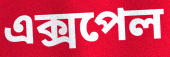
এক্সপেল